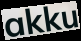
akku